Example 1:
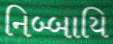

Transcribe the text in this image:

નિબ્બાયિ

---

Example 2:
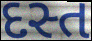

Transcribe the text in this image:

દસ્ત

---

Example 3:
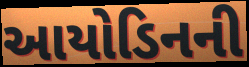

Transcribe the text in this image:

આયોડિનની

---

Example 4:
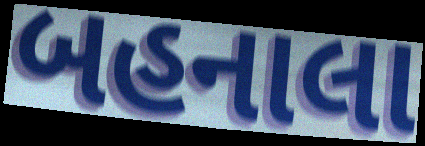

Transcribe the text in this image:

બહનાલા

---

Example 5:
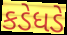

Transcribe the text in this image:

કડેધડે